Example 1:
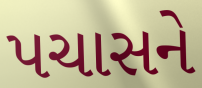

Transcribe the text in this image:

પચાસને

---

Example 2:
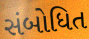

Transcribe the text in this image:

સંબોધિત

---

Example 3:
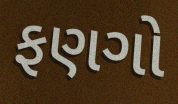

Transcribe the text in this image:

ફણગો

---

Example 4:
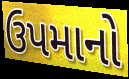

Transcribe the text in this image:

ઉપમાનો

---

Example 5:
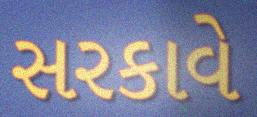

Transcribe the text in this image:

સરકાવે